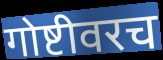
गोष्टीवरच